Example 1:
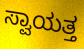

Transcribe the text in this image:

ಸ್ವಾಯತ್ತ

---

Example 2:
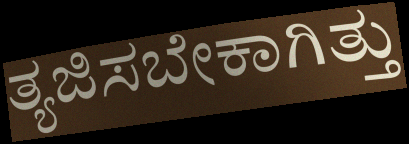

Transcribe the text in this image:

ತ್ಯಜಿಸಬೇಕಾಗಿತ್ತು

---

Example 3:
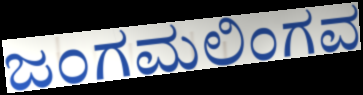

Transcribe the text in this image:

ಜಂಗಮಲಿಂಗವ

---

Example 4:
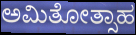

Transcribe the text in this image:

ಅಮಿತೋತ್ಸಾಹ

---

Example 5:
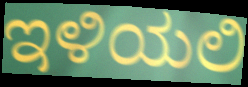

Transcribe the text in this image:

ಇಳಿಯಲಿ